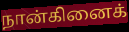
நான்கினைக்